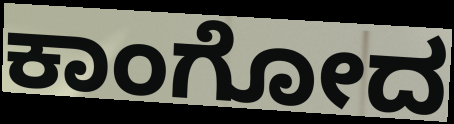
ಕಾಂಗೋದ